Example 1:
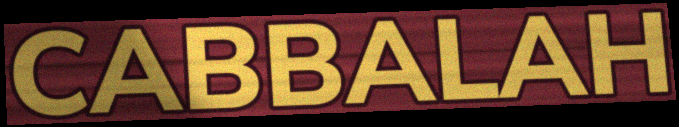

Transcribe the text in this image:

CABBALAH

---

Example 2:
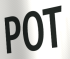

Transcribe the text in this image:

POT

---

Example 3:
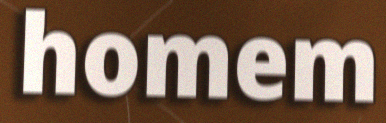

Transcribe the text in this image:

homem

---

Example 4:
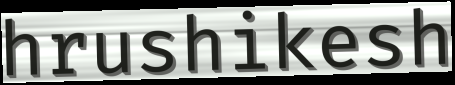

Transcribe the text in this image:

hrushikesh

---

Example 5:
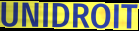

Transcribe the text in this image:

UNIDROIT